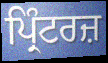
ਪ੍ਰਿੰਟਰਜ਼